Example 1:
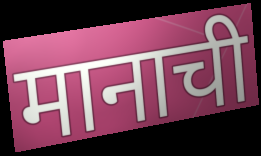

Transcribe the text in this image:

मानाची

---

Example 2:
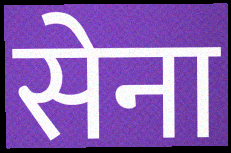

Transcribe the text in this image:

सेना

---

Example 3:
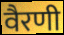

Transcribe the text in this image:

वैरणी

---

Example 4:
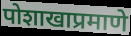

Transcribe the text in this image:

पोशाखाप्रमाणे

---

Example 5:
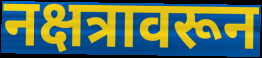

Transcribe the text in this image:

नक्षत्रावरून